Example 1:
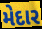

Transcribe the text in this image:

મેદાર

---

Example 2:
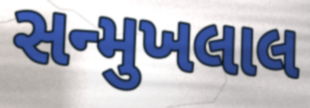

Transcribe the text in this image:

સન્મુખલાલ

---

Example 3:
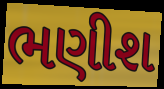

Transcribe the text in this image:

ભણીશ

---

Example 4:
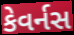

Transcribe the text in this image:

કેવર્નસ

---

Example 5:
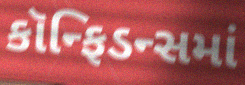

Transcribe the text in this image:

કૉન્ફિડન્સમાં